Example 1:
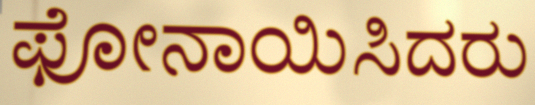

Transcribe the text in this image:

ಫೋನಾಯಿಸಿದರು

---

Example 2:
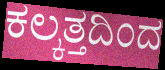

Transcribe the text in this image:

ಕಲ್ಕತ್ತದಿಂದ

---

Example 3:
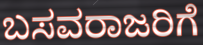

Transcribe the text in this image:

ಬಸವರಾಜರಿಗೆ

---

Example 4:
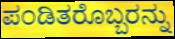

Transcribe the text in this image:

ಪಂಡಿತರೊಬ್ಬರನ್ನು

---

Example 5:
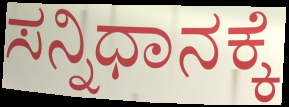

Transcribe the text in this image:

ಸನ್ನಿಧಾನಕ್ಕೆ